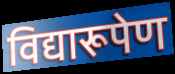
विद्यारूपेण